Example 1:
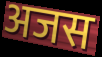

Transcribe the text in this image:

अजस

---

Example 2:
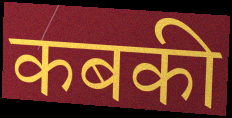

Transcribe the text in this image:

कबकी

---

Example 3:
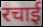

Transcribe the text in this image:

रचाई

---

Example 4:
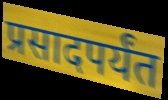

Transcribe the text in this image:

प्रसादपर्यंत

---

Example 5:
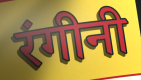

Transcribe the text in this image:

रंगीनी